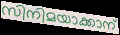
സിനിമയാക്കാന്